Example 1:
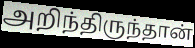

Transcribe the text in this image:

அறிந்திருந்தான்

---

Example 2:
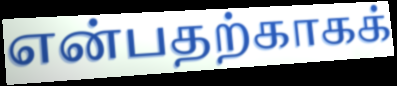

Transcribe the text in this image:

என்பதற்காகக்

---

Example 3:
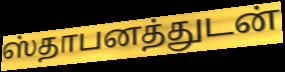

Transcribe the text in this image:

ஸ்தாபனத்துடன்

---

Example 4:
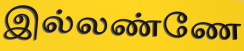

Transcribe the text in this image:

இல்லண்ணே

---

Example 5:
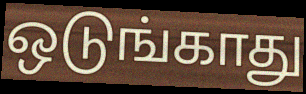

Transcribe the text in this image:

ஒடுங்காது